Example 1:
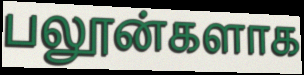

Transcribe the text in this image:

பலூன்களாக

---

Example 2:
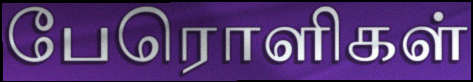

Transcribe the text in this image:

பேரொளிகள்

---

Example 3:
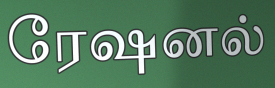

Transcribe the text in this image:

ரேஷனல்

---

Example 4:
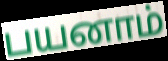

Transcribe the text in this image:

பயனாம்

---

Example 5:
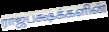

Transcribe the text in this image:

ராஜபக்ஷக்களின்